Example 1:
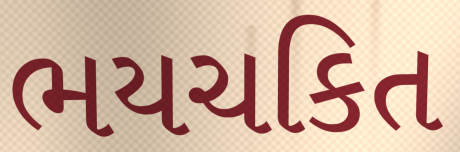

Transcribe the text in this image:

ભયચકિત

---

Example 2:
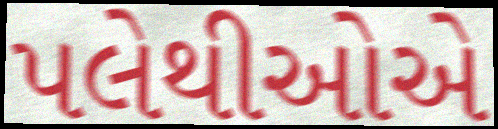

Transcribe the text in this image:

પલેથીઓએ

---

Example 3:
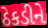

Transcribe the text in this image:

ઠેકડીને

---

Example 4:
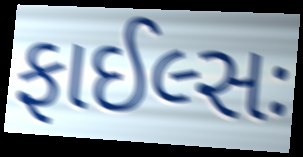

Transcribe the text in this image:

ફાઈલ્સઃ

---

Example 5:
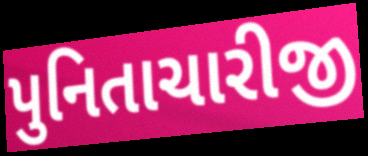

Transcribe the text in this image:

પુનિતાચારીજી